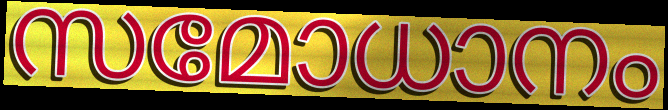
സമോധാനം